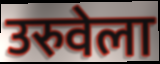
उरुवेला